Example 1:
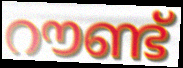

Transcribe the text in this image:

റൗണ്ട്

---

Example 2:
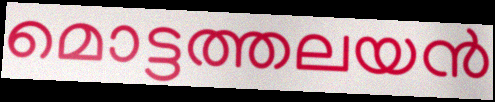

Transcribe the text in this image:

മൊട്ടത്തലയൻ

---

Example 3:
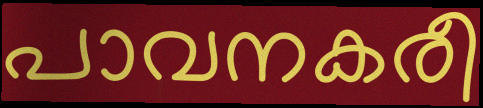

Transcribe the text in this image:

പാവനകരീ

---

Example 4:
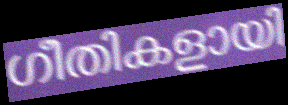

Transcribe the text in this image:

ഗീതികളായി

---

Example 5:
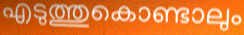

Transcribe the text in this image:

എടുത്തുകൊണ്ടാലും